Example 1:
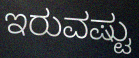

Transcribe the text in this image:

ಇರುವಷ್ಟು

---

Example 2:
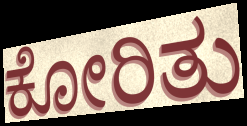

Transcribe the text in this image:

ಕೋರಿತು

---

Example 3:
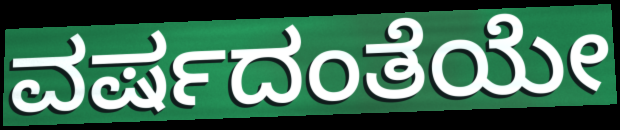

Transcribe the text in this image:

ವರ್ಷದಂತೆಯೇ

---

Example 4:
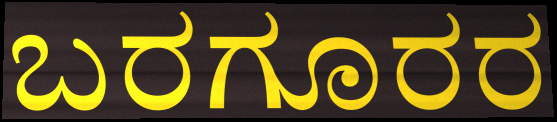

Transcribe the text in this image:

ಬರಗೂರರ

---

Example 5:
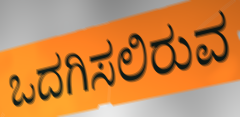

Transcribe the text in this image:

ಒದಗಿಸಲಿರುವ